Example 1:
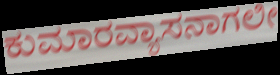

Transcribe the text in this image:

ಕುಮಾರವ್ಯಾಸನಾಗಲೀ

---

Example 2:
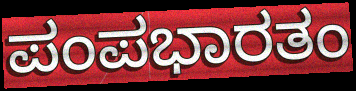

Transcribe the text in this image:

ಪಂಪಭಾರತಂ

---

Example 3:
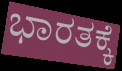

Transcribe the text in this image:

ಭಾರತಕ್ಕೆ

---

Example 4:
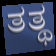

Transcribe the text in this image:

ತತ್ಥ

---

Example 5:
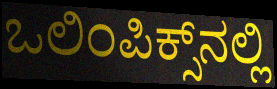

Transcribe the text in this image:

ಒಲಿಂಪಿಕ್ಸ್‌ನಲ್ಲಿ